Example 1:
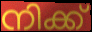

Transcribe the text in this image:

നിക്ക്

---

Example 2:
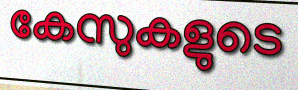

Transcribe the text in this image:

കേസുകളുടെ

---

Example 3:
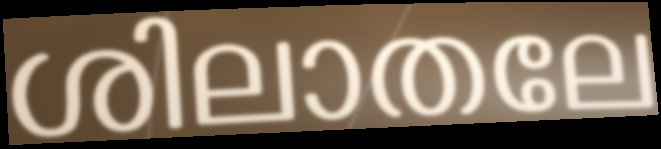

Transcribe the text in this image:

ശിലാതലേ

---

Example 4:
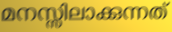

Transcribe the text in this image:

മനസ്സിലാക്കുന്നത്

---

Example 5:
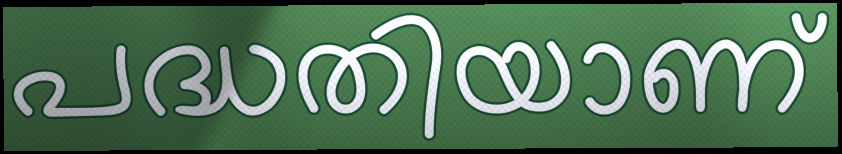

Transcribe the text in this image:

പദ്ധതിയാണ്